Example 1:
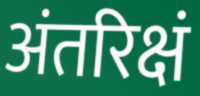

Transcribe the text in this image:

अंतरिक्षं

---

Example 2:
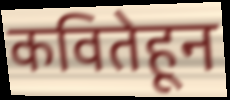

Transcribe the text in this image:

कवितेहून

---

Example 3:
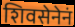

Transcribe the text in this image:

शिवसेनेनं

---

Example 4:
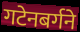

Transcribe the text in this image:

गटेनबर्गने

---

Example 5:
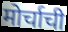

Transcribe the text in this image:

मोर्चाची